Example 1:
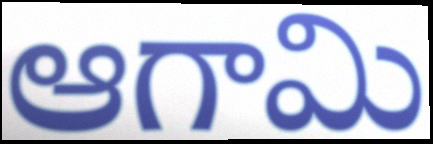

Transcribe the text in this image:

ఆగామి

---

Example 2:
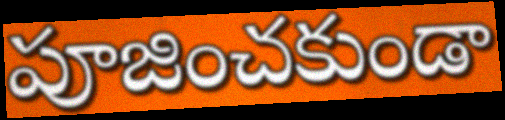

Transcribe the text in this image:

పూజించకుండా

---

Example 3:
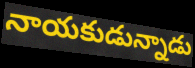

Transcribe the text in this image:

నాయకుడున్నాడు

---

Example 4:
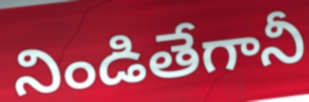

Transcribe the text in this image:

నిండితేగానీ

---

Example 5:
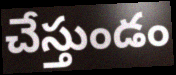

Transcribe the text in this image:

చేస్తుండం